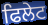
ਫਿਲੇਟ